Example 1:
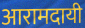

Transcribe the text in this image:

आरामदायी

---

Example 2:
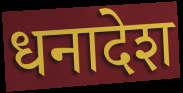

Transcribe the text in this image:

धनादेश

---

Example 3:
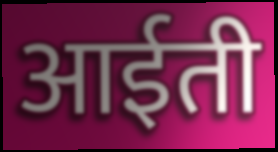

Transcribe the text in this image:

आईती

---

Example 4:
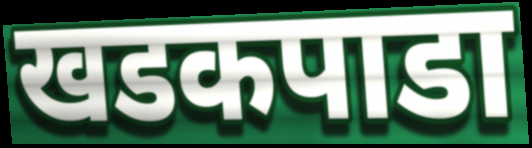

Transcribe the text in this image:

खडकपाडा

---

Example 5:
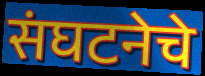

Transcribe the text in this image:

संघटनेचे